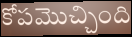
కోపమొచ్చింది